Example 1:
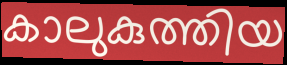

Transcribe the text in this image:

കാലുകുത്തിയ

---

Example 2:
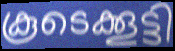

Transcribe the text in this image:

കൂടെക്കൂട്ടി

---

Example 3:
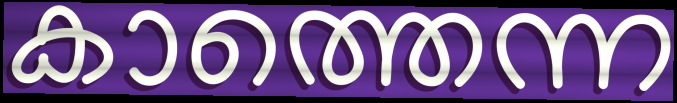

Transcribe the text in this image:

കാത്തെന്ന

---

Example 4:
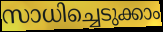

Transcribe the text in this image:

സാധിച്ചെടുക്കാം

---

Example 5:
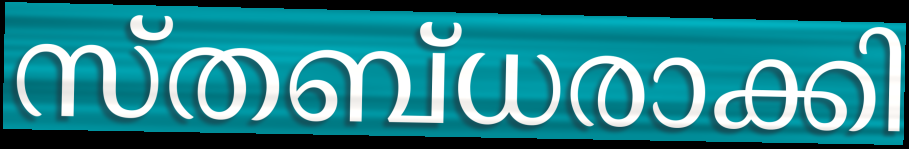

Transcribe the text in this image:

സ്തബ്ധരാക്കി